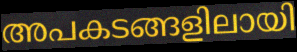
അപകടങ്ങളിലായി